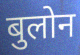
बुलोन